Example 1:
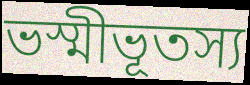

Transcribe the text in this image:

ভস্মীভূতস্য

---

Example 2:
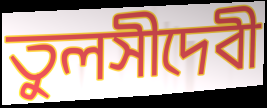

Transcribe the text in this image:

তুলসীদেবী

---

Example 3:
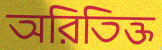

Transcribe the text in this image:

অরিতিক্ত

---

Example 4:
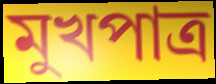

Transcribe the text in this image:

মুখপাত্র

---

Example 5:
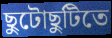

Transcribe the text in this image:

ছুটোছুটিতে